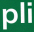
pli